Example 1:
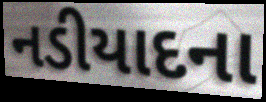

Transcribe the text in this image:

નડીયાદના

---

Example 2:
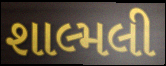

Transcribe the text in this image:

શાલ્મલી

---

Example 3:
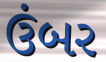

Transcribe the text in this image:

ઉંબર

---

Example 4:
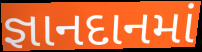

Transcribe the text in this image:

જ્ઞાનદાનમાં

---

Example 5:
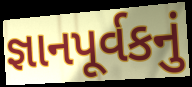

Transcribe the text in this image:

જ્ઞાનપૂર્વકનું